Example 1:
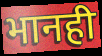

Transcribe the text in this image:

भानही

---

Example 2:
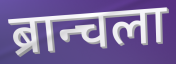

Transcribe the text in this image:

ब्रान्चला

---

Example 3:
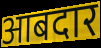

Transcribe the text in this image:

आबदार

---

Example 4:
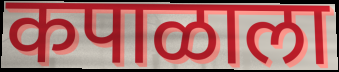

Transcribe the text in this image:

कपाळाला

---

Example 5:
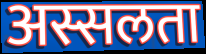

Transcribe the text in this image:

अस्सलता